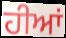
ਹੀਆਂ